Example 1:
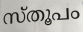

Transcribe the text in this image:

സ്തൂപം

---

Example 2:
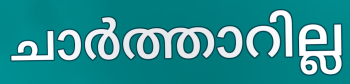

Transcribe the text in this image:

ചാർത്താറില്ല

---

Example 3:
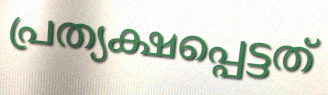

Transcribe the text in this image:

പ്രത്യക്ഷപ്പെട്ടത്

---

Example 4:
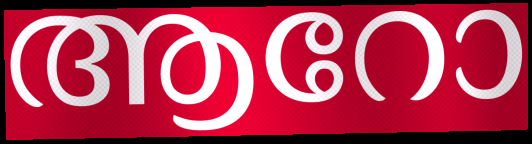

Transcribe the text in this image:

ആറോ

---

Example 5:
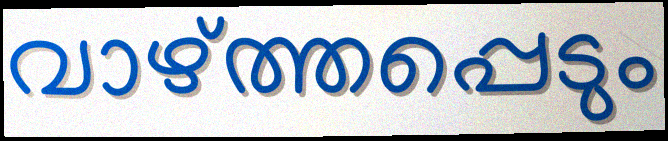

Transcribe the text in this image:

വാഴ്ത്തപ്പെടും